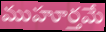
ముహూర్తమే